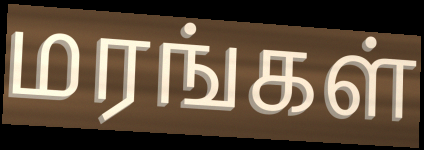
மரங்கள்